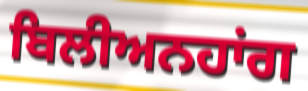
ਬਿਲੀਅਨਹਾਂਗ